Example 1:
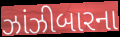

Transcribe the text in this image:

ઝાંઝીબારના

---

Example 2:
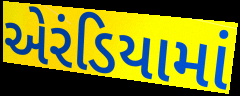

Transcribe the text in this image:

એરંડિયામાં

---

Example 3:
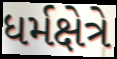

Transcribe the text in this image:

ધર્મક્ષેત્રે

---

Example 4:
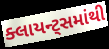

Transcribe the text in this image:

ક્લાયન્ટ્સમાંથી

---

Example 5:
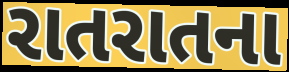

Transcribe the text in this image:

રાતરાતના